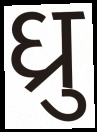
ध्रु